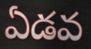
ఏడవ